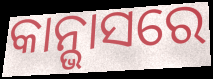
କାନ୍ଭାସରେ